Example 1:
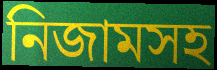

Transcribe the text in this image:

নিজামসহ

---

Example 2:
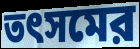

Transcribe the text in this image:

তৎসমের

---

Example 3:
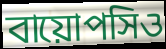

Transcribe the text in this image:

বায়োপসিও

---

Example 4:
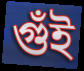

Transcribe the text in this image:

গুঁই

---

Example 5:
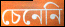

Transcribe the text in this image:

চেনেনি